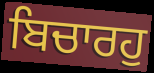
ਬਿਚਾਰਹੁ